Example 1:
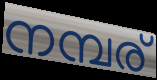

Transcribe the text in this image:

നമ്പര്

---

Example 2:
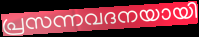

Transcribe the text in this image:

പ്രസന്നവദനയായി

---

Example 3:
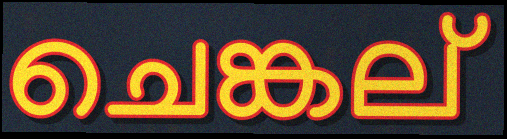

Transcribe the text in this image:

ചെങ്കല്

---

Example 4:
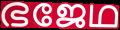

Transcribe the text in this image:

ഭജേഥ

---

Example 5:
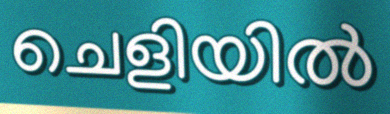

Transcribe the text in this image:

ചെളിയിൽ